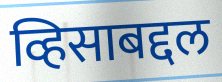
व्हिसाबद्दल